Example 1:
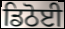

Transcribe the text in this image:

ਡਿਠੋਈ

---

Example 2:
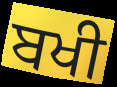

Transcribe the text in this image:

ਬਖੀ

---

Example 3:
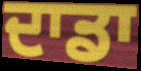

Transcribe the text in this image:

ਦਾਡਾ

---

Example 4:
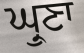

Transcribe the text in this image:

ਘ੍ਰੁਣਾ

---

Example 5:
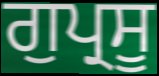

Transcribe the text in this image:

ਗੁਪ੍ਰਸੂ